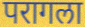
परागला